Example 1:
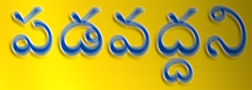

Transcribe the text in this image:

పడవద్దని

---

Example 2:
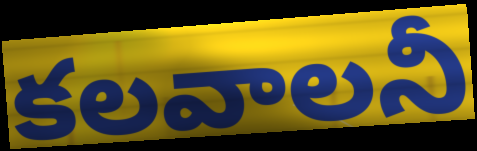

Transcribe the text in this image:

కలవాలనీ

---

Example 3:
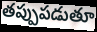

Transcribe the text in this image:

తప్పుపడుతూ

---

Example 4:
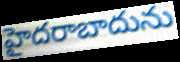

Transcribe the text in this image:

హైదరాబాదును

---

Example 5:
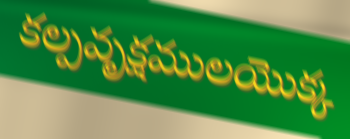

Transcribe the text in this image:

కల్పవృక్షములయొక్క